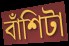
বাঁশিটা